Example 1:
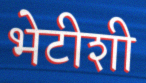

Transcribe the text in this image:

भेटीशी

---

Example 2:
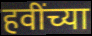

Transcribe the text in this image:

हवींच्या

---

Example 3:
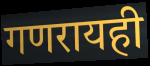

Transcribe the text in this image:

गणरायही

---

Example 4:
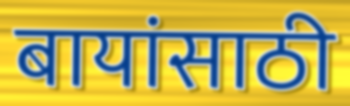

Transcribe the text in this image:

बायांसाठी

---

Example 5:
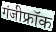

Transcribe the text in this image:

गंजीफ्रॉक